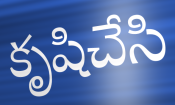
కృషిచేసి